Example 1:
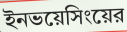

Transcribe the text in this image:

ইনভয়েসিংয়ের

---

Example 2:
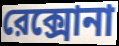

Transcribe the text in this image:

রেক্সোনা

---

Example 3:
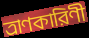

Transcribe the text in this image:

ত্রাণকারিণী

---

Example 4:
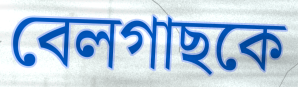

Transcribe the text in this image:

বেলগাছকে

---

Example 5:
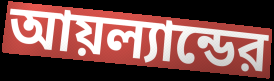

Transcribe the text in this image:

আয়ল্যান্ডের